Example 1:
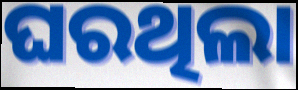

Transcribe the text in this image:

ଘରଥିଲା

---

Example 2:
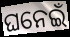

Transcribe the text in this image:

ଘନେଇଁ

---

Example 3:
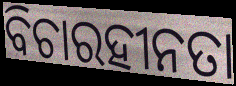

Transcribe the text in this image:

ବିଚାରହୀନତା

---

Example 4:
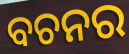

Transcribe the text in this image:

ବଚନର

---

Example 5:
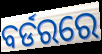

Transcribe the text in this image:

ବର୍ଡରରେ